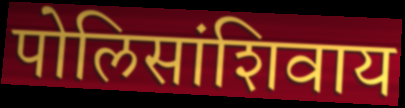
पोलिसांशिवाय